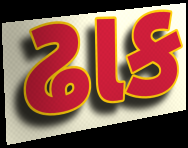
ઢાક